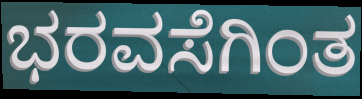
ಭರವಸೆಗಿಂತ